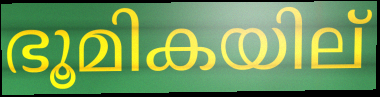
ഭൂമികയില്